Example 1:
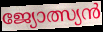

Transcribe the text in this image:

ജ്യോത്സ്യൻ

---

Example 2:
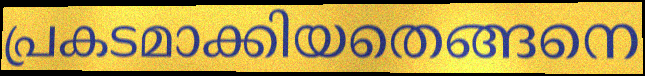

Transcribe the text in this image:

പ്രകടമാക്കിയതെങ്ങനെ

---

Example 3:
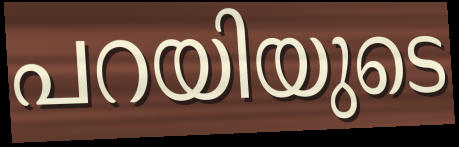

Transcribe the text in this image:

പറയിയുടെ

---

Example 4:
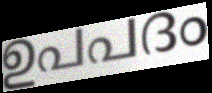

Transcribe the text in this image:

ഉപപദം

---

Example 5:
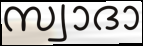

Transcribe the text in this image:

സ്വാദാ